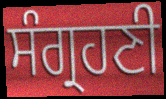
ਸੰਗ੍ਰਹਣੀ